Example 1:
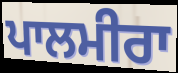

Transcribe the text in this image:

ਪਾਲਮੀਰਾ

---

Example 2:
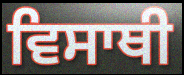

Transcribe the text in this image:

ਵਿਸਾਥੀ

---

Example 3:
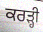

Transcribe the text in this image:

ਕਰੜ੍ਹੀ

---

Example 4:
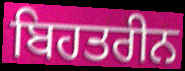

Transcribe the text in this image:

ਬਿਹਤਰੀਨ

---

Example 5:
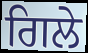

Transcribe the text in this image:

ਗਿਲੇ